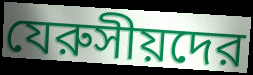
যেরুসীয়দের